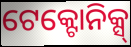
ଟେକ୍ଟୋନିକ୍ସ୍